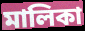
মালিকা